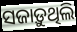
ସଜାଡ଼ୁଥିଲି